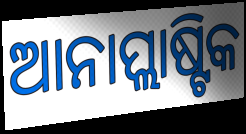
ଆନାପ୍ଲାଷ୍ଟିକ